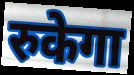
रुकेगा